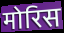
मोरिस